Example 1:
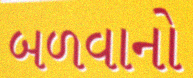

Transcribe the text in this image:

બળવાનો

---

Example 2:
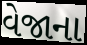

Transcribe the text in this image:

વેજાના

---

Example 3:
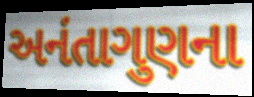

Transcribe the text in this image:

અનંતાગુણના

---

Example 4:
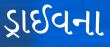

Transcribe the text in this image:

ડ્રાઈવના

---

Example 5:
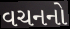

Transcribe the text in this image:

વચનનો